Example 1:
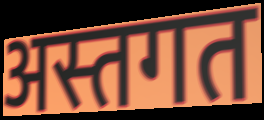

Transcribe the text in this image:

अस्तगत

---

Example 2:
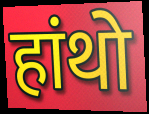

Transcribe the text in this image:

हांथो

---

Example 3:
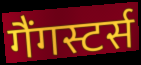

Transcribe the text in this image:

गैंगस्टर्स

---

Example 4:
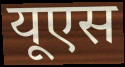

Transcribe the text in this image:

यूएस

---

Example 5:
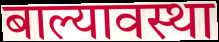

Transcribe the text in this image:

बाल्यावस्था